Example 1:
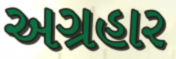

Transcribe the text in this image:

અગ્રહાર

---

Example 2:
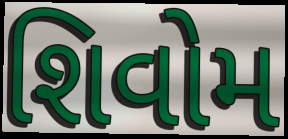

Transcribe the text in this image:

શિવોમ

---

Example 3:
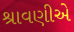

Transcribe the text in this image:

શ્રાવણીએ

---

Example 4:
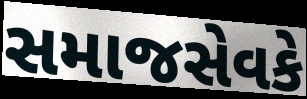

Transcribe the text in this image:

સમાજસેવકે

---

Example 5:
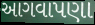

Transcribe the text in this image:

આગવાપણા